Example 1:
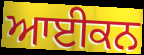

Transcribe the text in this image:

ਆਈਕਨ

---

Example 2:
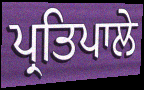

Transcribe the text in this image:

ਪ੍ਰਤਿਪਾਲੇ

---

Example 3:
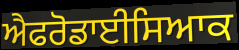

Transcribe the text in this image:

ਐਫਰੋਡਾਈਸਿਆਕ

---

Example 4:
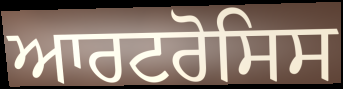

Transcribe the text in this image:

ਆਰਟਰੋਸਿਸ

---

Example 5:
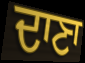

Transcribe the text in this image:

ਦਾਣਾ